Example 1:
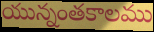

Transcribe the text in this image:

యున్నంతకాలము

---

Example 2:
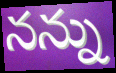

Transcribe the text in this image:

నన్ను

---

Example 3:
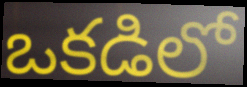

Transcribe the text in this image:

ఒకడిలో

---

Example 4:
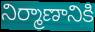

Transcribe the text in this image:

నిర్మాణానికి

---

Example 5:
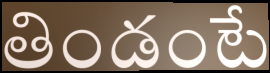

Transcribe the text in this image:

తిండంటే